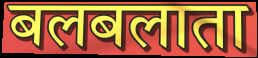
बलबलाता